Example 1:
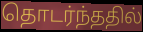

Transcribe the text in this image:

தொடர்ந்ததில்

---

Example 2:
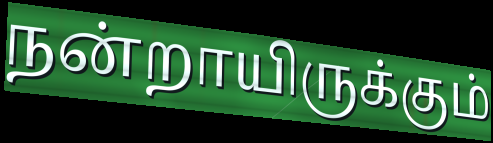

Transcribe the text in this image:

நன்றாயிருக்கும்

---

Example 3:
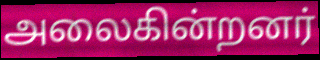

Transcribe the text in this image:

அலைகின்றனர்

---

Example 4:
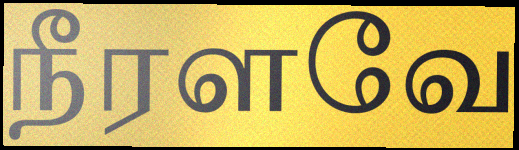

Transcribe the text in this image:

நீரளவே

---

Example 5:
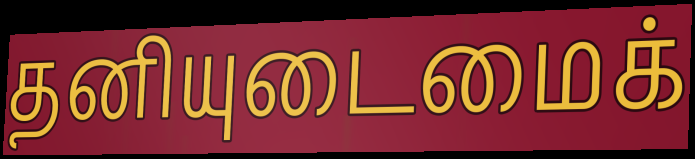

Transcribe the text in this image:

தனியுடைமைக்